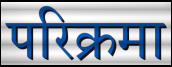
परिक्रमा